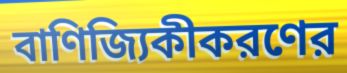
বাণিজ্যিকীকরণের